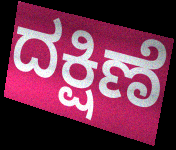
ದಕ್ಷಿಣೆ